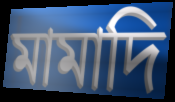
মামাদি